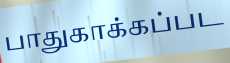
பாதுகாக்கப்பட